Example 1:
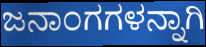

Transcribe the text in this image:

ಜನಾಂಗಗಳನ್ನಾಗಿ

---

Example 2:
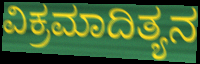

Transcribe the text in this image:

ವಿಕ್ರಮಾದಿತ್ಯನ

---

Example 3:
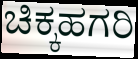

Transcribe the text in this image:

ಚಿಕ್ಕಹಗರಿ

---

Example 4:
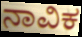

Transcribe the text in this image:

ನಾವಿಕ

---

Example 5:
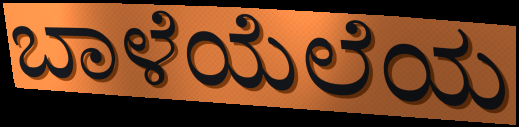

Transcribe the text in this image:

ಬಾಳೆಯೆಲೆಯ